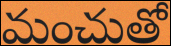
మంచుతో